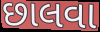
છાલવા